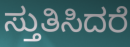
ಸ್ತುತಿಸಿದರೆ